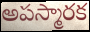
అపస్మారక